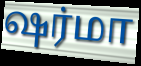
ஷர்மா